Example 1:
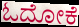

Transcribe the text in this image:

ಓದೋಕೆ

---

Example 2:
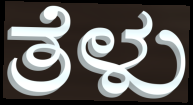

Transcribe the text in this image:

ತೆಳು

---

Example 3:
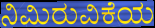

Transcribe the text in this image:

ನಿಮಿರುವಿಕೆಯ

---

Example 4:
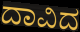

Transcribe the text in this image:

ದಾವಿದ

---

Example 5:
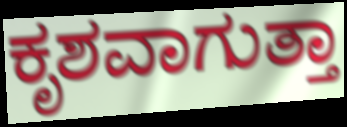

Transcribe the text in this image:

ಕೃಶವಾಗುತ್ತಾ